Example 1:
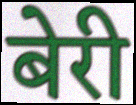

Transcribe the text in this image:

बेरी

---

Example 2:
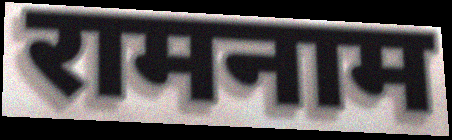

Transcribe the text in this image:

रामनाम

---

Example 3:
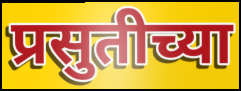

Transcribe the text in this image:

प्रसुतीच्या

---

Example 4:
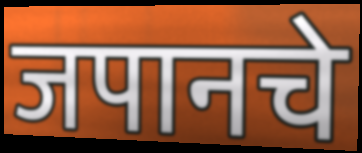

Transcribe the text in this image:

जपानचे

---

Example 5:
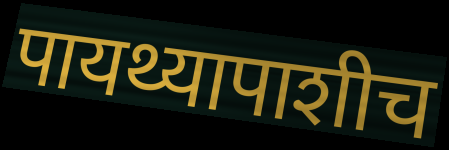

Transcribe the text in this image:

पायथ्यापाशीच